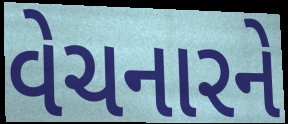
વેચનારને